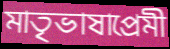
মাতৃভাষাপ্রেমী